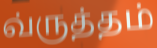
வ்ருத்தம்